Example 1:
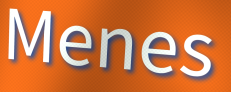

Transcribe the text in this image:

Menes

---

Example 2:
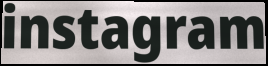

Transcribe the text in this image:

instagram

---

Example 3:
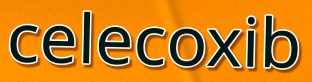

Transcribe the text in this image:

celecoxib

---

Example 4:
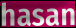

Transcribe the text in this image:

hasan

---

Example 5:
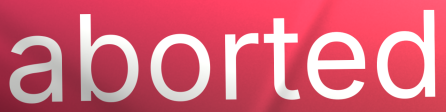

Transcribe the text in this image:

aborted